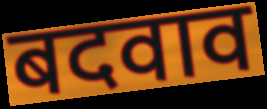
बदवाव